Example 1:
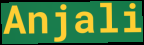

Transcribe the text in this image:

Anjali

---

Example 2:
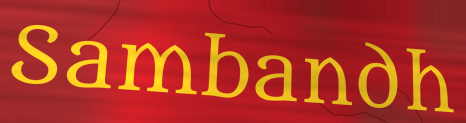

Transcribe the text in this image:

Sambandh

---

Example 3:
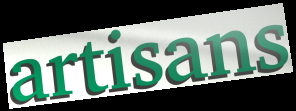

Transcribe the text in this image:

artisans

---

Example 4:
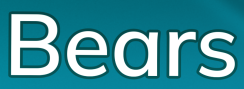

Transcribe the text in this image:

Bears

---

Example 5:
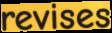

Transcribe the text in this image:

revises